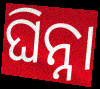
ଘିନ୍ନା